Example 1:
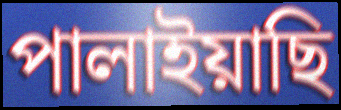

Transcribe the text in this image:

পালাইয়াছি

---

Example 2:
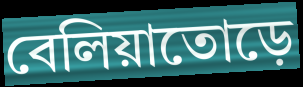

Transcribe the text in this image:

বেলিয়াতোড়ে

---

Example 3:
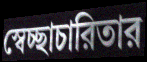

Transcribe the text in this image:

স্বেচ্ছাচারিতার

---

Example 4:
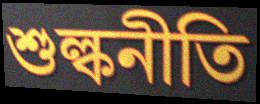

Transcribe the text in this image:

শুল্কনীতি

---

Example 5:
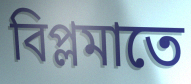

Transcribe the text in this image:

বিপ্লমাতে